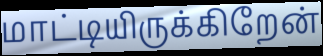
மாட்டியிருக்கிறேன்